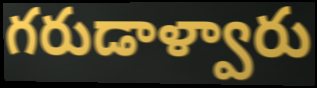
గరుడాళ్వారు